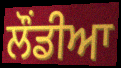
ਲੌਂਡੀਆ